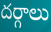
దర్గాలు